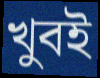
খুবই